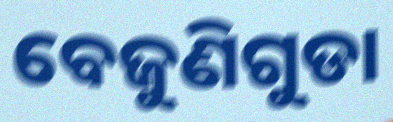
ବେଜୁଣିଗୁଡା